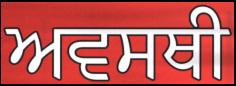
ਅਵਸਥੀ